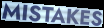
MISTAKES